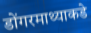
डोंगरमाथ्याकडे